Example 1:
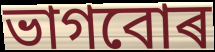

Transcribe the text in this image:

ভাগবোৰ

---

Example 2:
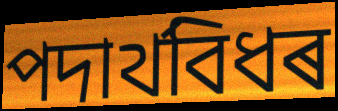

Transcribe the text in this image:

পদাৰ্থবিধৰ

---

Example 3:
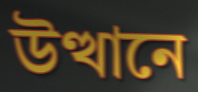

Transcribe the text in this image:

উত্থানে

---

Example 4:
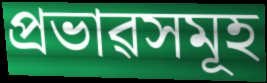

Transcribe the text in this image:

প্ৰভাৱসমূহ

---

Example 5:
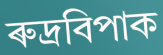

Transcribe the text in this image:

ৰুদ্ৰবিপাক